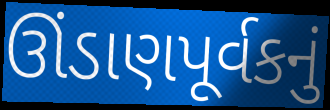
ઊંડાણપૂર્વકનું